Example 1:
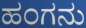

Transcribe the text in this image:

ಹಂಗನು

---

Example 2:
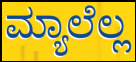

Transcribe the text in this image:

ಮ್ಯಾಲೆಲ್ಲ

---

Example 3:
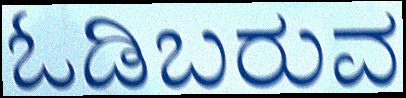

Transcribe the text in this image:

ಓಡಿಬರುವ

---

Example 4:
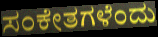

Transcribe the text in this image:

ಸಂಕೇತಗಳೆಂದು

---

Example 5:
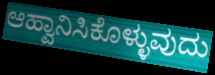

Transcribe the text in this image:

ಆಹ್ವಾನಿಸಿಕೊಳ್ಳುವುದು